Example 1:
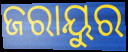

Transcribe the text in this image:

ଜରାୟୁର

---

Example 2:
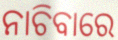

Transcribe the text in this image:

ନାଚିବାରେ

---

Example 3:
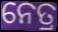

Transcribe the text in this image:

ନେତ୍ର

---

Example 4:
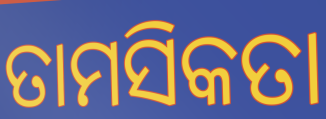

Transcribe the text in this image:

ତାମସିକତା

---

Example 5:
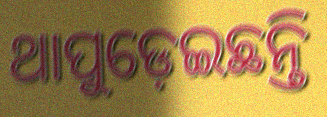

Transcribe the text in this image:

ଥାପୁଡ଼େଇଛନ୍ତି